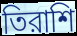
তিরাশি